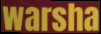
warsha